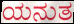
ಯನುತ